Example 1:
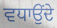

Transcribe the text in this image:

ਵਧਾਉਂਦੇ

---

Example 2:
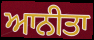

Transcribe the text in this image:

ਆਨੀਤਾ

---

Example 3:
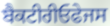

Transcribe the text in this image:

ਬੈਕਟੀਰੀਓਫੇਜਸ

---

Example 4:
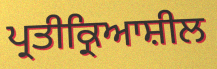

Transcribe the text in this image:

ਪ੍ਰਤੀਕ੍ਰਿਆਸ਼ੀਲ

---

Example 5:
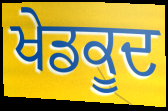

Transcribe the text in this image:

ਖੇਡਕੂਦ